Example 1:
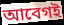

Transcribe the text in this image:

আবেগই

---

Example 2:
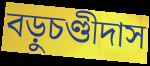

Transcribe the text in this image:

বড়ুচণ্ডীদাস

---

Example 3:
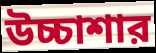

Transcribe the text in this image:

উচ্চাশার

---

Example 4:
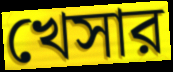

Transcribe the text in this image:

খেসার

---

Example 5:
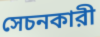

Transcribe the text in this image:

সেচনকারী